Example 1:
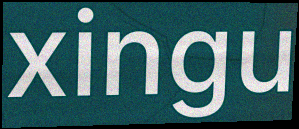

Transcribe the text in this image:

xingu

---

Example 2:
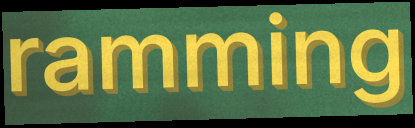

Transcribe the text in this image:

ramming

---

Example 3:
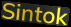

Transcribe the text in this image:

Sintok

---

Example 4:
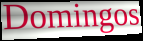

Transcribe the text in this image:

Domingos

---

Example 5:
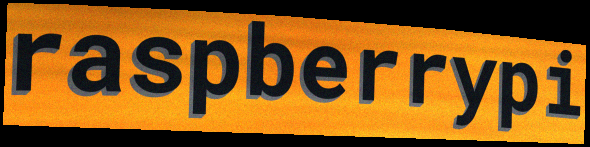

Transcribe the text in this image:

raspberrypi